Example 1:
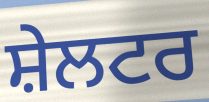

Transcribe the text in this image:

ਸ਼ੇਲਟਰ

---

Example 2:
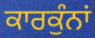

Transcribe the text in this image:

ਕਾਰਕੁੰਨਾਂ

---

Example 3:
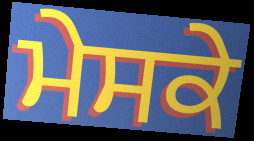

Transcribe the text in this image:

ਮੇਸਕੇ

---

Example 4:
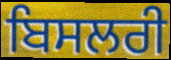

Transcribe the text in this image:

ਬਿਸਲਰੀ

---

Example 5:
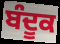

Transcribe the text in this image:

ਬੰਦੂਕ